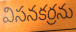
విసనకర్రను